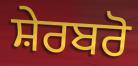
ਸ਼ੇਰਬਰੋ